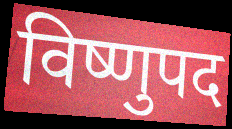
विष्णुपद